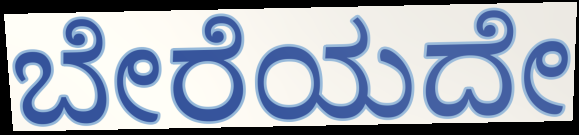
ಬೇರೆಯದೇ